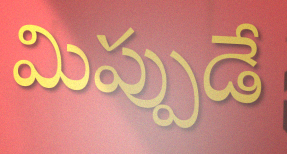
మిప్పుడే